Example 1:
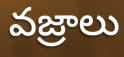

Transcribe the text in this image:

వజ్రాలు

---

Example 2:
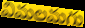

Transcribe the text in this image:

విమలమగు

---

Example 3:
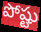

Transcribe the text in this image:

పోష్టు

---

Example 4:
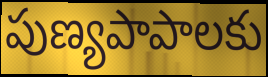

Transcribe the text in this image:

పుణ్యపాపాలకు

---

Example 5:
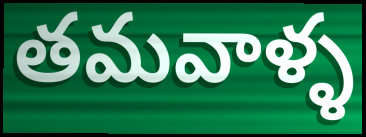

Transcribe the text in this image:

తమవాళ్ళ